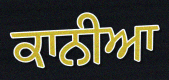
ਕਾਨੀਆ